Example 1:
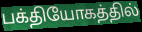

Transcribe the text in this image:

பக்தியோகத்தில்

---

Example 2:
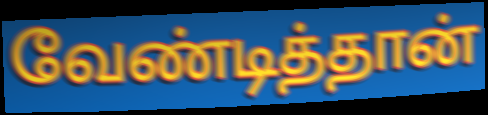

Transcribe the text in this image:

வேண்டித்தான்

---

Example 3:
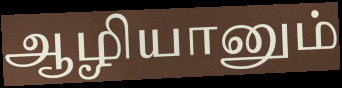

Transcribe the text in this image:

ஆழியானும்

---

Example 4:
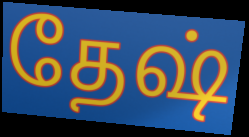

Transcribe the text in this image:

தேஷ்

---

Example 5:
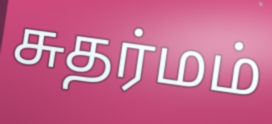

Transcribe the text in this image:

சுதர்மம்